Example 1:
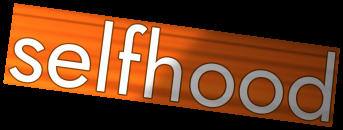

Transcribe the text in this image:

selfhood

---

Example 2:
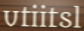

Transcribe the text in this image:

utiitsl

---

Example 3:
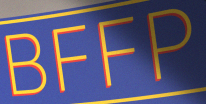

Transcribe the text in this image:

BFFP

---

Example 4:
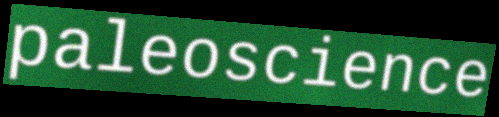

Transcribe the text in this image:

paleoscience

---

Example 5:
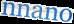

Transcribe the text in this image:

nnano